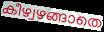
കീഴ്വഴങ്ങാതെ